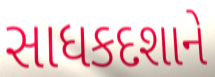
સાધકદશાને